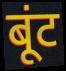
बूंट